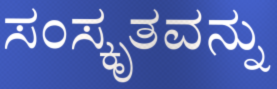
ಸಂಸ್ಕೃತವನ್ನು